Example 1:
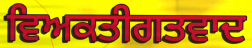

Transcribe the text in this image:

ਵਿਅਕਤੀਗਤਵਾਦ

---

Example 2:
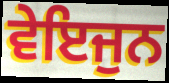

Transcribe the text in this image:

ਵੇਇਜੁਨ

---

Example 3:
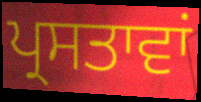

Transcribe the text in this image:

ਪ੍ਰਸਤਾਵਾਂ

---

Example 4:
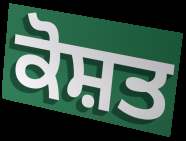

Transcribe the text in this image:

ਕੋਸ਼ਤ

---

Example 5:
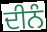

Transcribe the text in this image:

ਦੀਨੰ